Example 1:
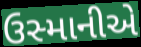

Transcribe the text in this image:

ઉસ્માનીએ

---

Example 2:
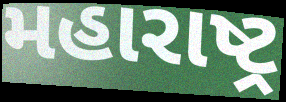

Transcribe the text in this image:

મહારાષ્ટ્ર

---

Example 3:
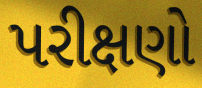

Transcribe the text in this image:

પરીક્ષણો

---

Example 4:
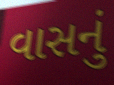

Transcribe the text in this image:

વાસનું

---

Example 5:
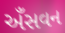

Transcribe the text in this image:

અઁસવન